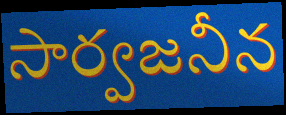
సార్వజనీన